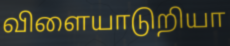
விளையாடுறியா